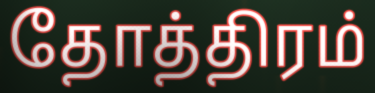
தோத்திரம்